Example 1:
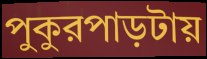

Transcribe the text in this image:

পুকুরপাড়টায়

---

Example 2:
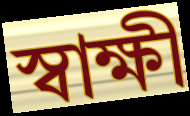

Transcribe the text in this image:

স্বাক্ষী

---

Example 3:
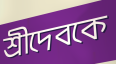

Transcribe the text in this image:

শ্রীদেবকে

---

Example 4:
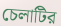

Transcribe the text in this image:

চেলাটির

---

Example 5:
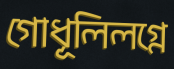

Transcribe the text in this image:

গোধূলিলগ্নে